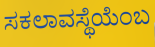
ಸಕಲಾವಸ್ಥೆಯೆಂಬ